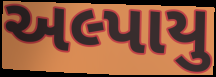
અલ્પાયુ